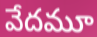
వేదమూ